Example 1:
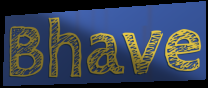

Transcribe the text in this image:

Bhave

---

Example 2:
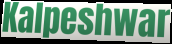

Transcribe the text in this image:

Kalpeshwar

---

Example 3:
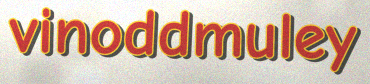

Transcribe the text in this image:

vinoddmuley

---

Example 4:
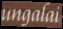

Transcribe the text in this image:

ungalai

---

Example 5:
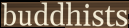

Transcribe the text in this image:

buddhists